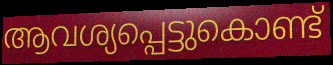
ആവശ്യപ്പെട്ടുകൊണ്ട്